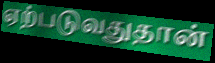
ஏற்படுவதுதான்